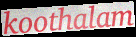
koothalam